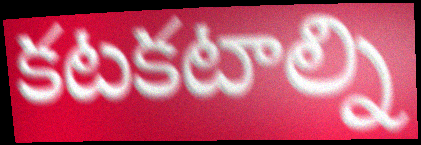
కటకటాల్ని